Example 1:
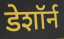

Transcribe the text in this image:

डेशॉर्न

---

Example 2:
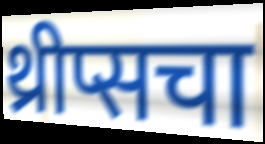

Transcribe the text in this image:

थ्रीप्सचा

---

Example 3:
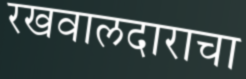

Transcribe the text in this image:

रखवालदाराचा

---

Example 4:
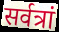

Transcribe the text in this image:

सर्वत्रां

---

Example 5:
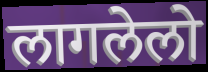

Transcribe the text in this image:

लागलेलो